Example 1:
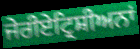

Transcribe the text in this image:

ਜੇਰੀਏਟ੍ਰਿਸ਼ੀਅਨਾਂ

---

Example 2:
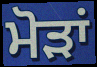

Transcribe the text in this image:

ਮੋੜਾਂ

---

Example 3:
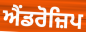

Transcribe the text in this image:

ਐਂਡਰੋਜ਼ਿਪ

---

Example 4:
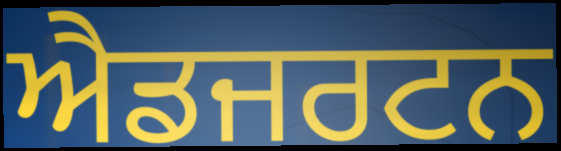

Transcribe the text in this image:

ਐਡਜਰਟਨ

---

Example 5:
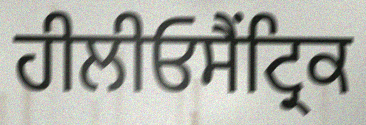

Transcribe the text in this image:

ਹੀਲੀਓਸੈਂਟ੍ਰਿਕ